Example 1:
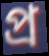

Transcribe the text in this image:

প্ৰ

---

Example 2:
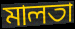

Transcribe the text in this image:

মালতা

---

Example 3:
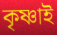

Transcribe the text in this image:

কৃষ্ণাই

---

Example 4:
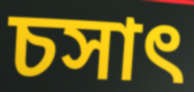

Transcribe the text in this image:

চসাৎ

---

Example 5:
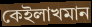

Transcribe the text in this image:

কেইলাখমান